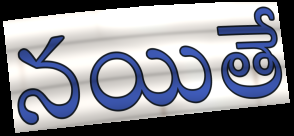
నయితే